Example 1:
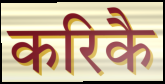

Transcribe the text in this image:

करिकै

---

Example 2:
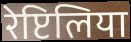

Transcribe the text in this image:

रेप्टिलिया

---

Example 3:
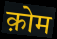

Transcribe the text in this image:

क़ोम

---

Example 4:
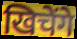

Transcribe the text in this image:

खिचेंगे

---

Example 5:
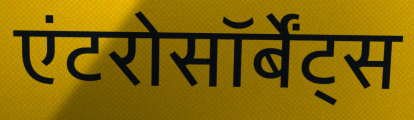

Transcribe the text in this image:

एंटरोसॉर्बेंट्स